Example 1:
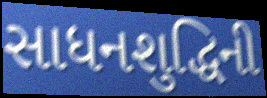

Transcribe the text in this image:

સાધનશુદ્ધિની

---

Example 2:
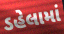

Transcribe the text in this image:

ડહેલામાં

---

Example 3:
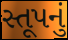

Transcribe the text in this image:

સ્તૂપનું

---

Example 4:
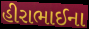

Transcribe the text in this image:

હીરાભાઈના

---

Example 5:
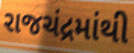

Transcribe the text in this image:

રાજચંદ્રમાંથી